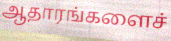
ஆதாரங்களைச்